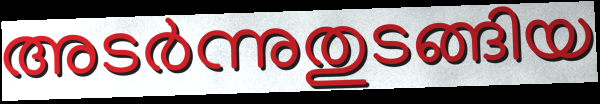
അടർന്നുതുടങ്ങിയ